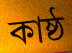
কাষ্ঠ